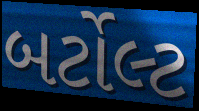
બર્ટોલ્ટ